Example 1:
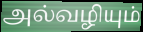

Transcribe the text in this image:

அல்வழியும்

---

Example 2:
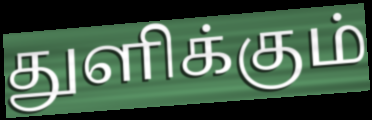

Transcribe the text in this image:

துளிக்கும்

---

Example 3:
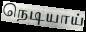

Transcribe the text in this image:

நெடியாய்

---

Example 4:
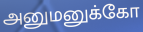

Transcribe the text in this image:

அனுமனுக்கோ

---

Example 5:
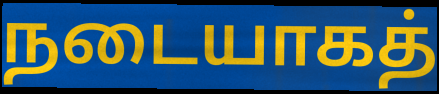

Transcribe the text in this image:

நடையாகத்